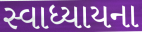
સ્વાધ્યાયના